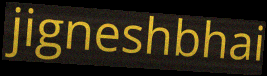
jigneshbhai